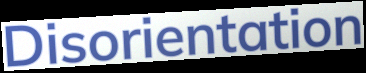
Disorientation